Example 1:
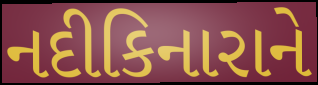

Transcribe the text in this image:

નદીકિનારાને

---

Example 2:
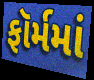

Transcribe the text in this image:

ફૉર્મમાં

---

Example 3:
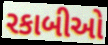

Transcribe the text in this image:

રકાબીઓ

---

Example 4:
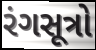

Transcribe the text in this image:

રંગસૂત્રો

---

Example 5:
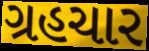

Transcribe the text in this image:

ગ્રહચાર